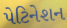
પેટિનેશન